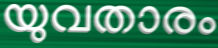
യുവതാരം